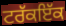
ਟਰੱਕਇੱਕ